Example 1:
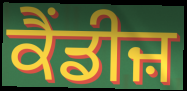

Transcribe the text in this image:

ਕੈਂਡੀਜ਼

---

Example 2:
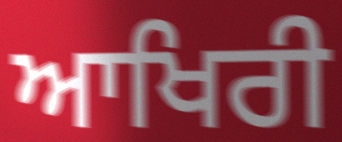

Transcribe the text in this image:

ਆਖਿਰੀ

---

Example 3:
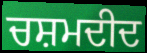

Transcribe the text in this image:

ਚਸ਼ਮਦੀਦ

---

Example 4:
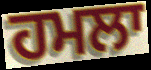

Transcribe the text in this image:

ਹਮਲਾ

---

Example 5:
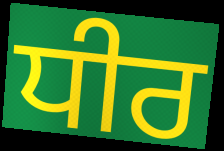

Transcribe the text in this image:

ਧੀਰ